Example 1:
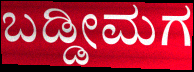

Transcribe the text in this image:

ಬಡ್ಡೀಮಗ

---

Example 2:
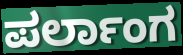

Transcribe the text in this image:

ಪರ್ಲಾಂಗ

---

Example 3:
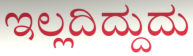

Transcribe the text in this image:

ಇಲ್ಲದಿದ್ದುದು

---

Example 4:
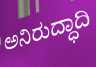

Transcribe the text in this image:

ಅನಿರುದ್ಧಾದಿ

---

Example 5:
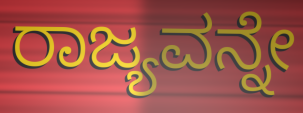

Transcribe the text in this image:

ರಾಜ್ಯವನ್ನೇ